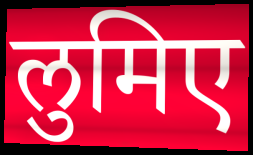
लुमिए